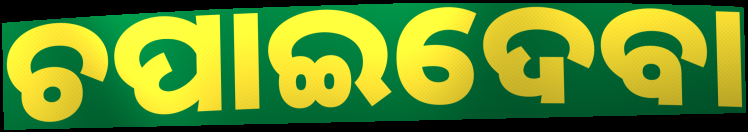
ଚପାଇଦେବା